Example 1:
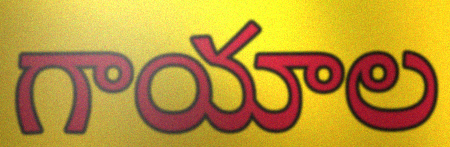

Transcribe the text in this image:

గాయాల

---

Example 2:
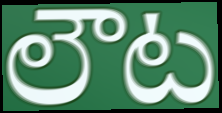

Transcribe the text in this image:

లౌట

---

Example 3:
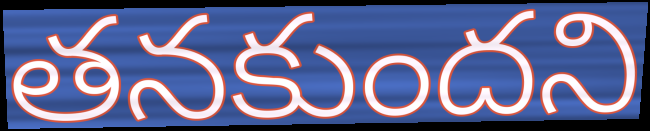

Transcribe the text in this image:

తనకుందని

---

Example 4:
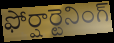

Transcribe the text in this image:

ఫోర్షార్టెనింగ్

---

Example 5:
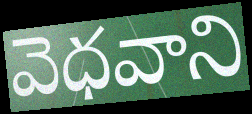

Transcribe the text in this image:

వెధవాని